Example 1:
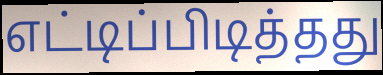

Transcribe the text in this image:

எட்டிப்பிடித்தது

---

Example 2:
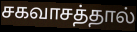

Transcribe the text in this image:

சகவாசத்தால்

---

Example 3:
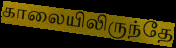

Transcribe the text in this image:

காலையிலிருந்தே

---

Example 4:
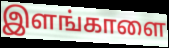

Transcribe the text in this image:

இளங்காளை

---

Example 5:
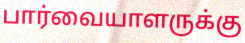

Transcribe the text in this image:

பார்வையாளருக்கு